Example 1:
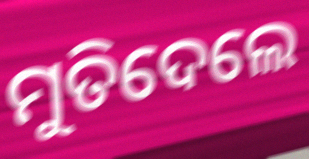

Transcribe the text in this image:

ମୁତିଦେଲେ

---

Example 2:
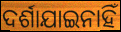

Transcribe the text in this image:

ଦର୍ଶାଯାଇନାହିଁ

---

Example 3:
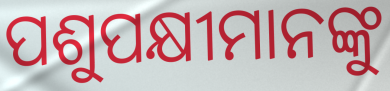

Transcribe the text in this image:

ପଶୁପକ୍ଷୀମାନଙ୍କୁ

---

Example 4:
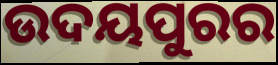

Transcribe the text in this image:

ଉଦୟପୁରର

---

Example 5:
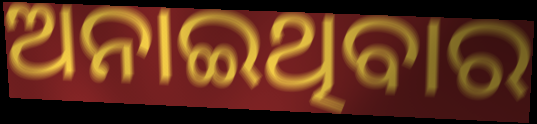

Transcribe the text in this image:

ଅନାଇଥିବାର